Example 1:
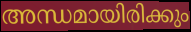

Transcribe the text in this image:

അന്ധമായിരിക്കും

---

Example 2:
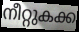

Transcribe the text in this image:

നീറ്റുകക്ക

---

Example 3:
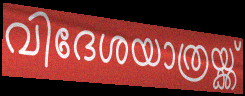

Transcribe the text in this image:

വിദേശയാത്രയ്ക്ക്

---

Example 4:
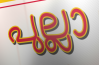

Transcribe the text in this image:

പുല്ലാ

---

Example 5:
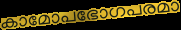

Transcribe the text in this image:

കാമോപഭോഗപരമാ